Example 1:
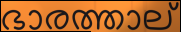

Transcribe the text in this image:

ഭാരത്താല്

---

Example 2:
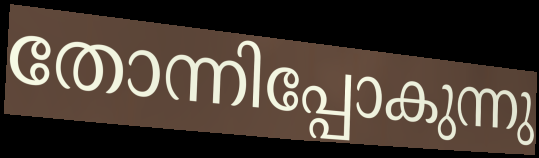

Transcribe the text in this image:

തോന്നിപ്പോകുന്നു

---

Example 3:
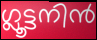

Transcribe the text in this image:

ഗ്ലൂട്ടനിൻ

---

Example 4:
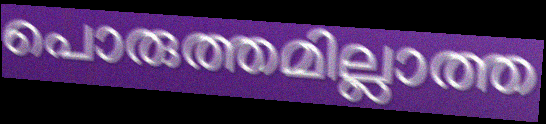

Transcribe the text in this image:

പൊരുത്തമില്ലാത്ത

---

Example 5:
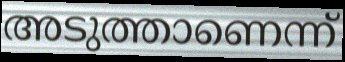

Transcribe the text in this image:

അടുത്താണെന്ന്